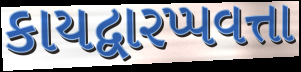
કાયદ્વારપ્પવત્તા